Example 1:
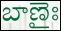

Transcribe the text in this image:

బాణైః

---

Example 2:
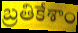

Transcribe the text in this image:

బ్రతికేశాం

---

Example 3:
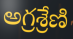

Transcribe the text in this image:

అగ్రశ్రేణి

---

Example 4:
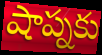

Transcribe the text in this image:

షాప్నకు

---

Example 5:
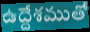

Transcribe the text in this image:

ఉద్దేశముతో